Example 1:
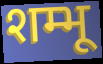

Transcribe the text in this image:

शम्भू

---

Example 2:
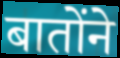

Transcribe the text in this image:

बातोंने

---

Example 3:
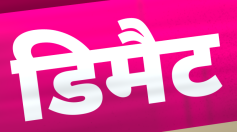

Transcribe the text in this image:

डिमैट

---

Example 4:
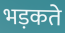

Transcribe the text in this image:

भड़कते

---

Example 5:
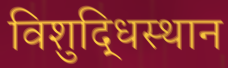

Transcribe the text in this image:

विशुद्धिस्थान